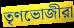
তৃণভোজীরা